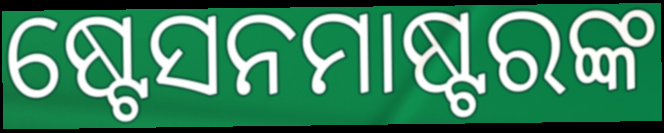
ଷ୍ଟେସନମାଷ୍ଟରଙ୍କ